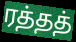
ரத்தத்